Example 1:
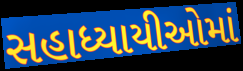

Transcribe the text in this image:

સહાધ્યાયીઓમાં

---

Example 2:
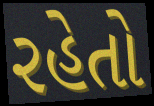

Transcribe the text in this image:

રહેતો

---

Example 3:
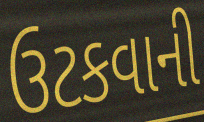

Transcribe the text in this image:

ઉટકવાની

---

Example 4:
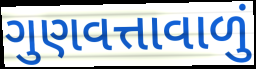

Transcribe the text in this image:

ગુણવત્તાવાળું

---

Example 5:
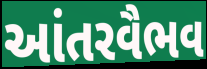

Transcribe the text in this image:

આંતરવૈભવ